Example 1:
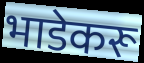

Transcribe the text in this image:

भाडेकरू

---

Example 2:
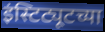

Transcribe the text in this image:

इंस्टिट्यूटच्या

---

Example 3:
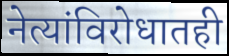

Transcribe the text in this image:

नेत्यांविरोधातही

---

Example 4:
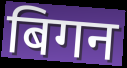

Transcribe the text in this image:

बिगन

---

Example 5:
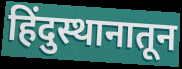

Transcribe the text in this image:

हिंदुस्थानातून